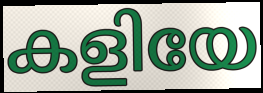
കളിയേ